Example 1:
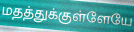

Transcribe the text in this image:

மதத்துக்குள்ளேயே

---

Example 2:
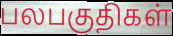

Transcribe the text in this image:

பலபகுதிகள்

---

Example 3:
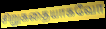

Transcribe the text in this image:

சிறுகதையாகவோ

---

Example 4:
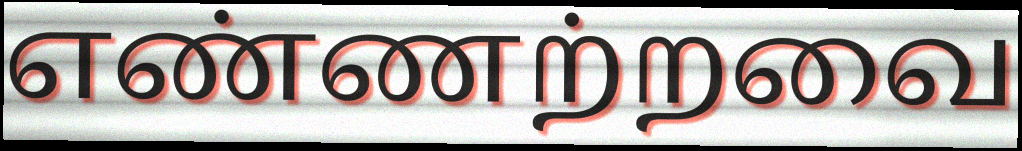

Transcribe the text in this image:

எண்ணற்றவை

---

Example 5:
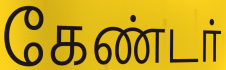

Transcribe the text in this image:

கேண்டர்